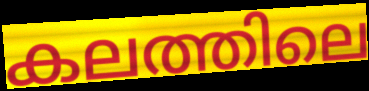
കലത്തിലെ